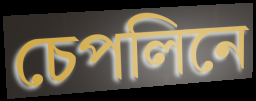
চেপলিনে